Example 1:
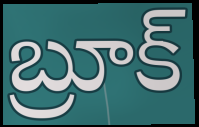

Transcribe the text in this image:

బ్రూక్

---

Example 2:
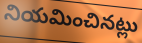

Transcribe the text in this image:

నియమించినట్లు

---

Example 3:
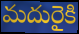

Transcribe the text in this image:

మదురైకి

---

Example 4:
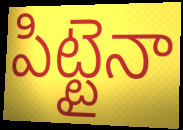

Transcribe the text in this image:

పిట్టైనా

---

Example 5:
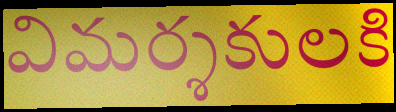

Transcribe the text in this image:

విమర్శకులకి